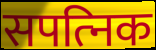
सपत्‍निक